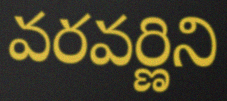
వరవర్ణిని